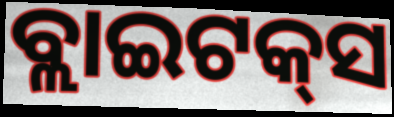
ବ୍ଲାଇଟକ୍‌ସ